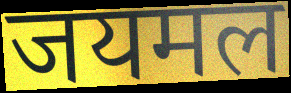
जयमल